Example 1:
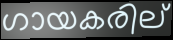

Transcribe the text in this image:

ഗായകരില്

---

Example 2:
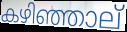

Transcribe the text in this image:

കഴിഞ്ഞാല്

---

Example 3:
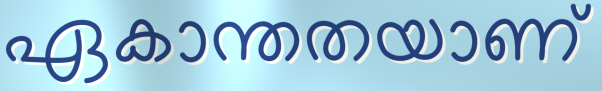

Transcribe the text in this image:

ഏകാന്തതയാണ്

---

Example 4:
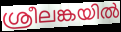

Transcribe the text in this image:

ശ്രീലങ്കയിൽ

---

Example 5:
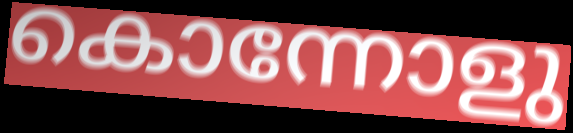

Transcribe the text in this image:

കൊന്നോളു